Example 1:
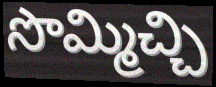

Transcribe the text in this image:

సొమ్మిచ్చి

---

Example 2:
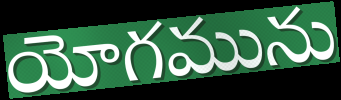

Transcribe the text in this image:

యోగమును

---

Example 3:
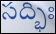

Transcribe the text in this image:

సద్భిః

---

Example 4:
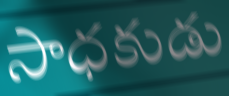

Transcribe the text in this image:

సాధకుడు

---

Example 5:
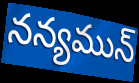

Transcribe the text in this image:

నన్యమున్